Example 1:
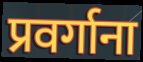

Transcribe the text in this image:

प्रवर्गाना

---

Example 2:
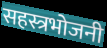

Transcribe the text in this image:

सहस्त्रभोजनी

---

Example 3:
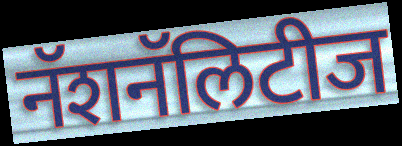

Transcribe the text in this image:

नॅशनॅलिटीज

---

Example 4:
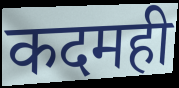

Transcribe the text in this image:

कदमही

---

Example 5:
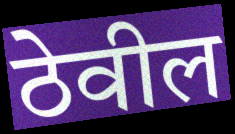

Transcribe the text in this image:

ठेवील